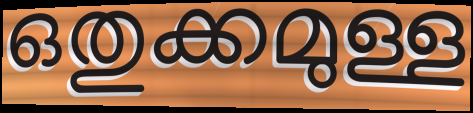
ഒതുക്കമുള്ള